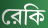
রেকি